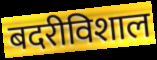
बदरीविशाल